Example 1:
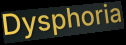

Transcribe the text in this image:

Dysphoria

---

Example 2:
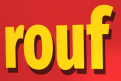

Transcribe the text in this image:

rouf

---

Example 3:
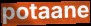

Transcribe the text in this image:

potaane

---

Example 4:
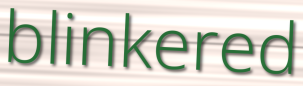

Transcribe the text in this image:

blinkered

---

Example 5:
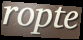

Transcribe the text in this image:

ropte